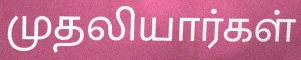
முதலியார்கள்